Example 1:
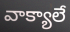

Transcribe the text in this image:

వాక్యాలే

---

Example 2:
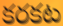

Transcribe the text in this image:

కరకట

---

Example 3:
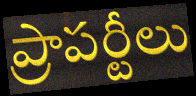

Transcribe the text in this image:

ప్రాపర్టీలు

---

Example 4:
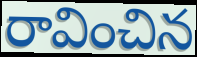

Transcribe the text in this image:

రావించిన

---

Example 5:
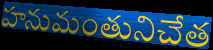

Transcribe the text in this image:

హనుమంతునిచేత